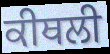
ਕੀਥਲੀ